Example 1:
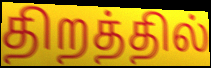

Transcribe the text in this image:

திறத்தில்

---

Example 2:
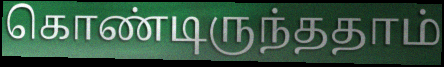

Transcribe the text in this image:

கொண்டிருந்ததாம்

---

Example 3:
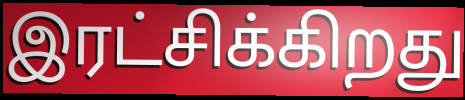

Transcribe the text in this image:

இரட்சிக்கிறது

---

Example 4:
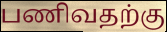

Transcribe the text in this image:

பணிவதற்கு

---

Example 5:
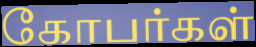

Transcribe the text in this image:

கோபர்கள்